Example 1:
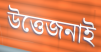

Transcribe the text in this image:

উত্তেজনাই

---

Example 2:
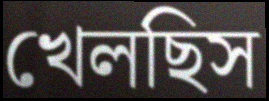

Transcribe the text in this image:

খেলছিস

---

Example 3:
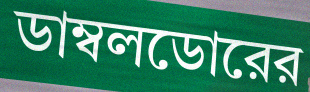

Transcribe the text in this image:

ডাম্বলডোরের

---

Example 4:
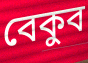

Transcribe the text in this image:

বেকুব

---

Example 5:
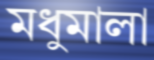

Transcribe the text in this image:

মধুমালা